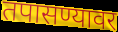
तपासण्यावर